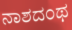
ನಾಶದಂಥ